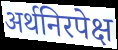
अर्थनिरपेक्ष